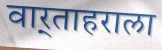
वार्ताहराला